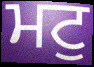
ਮਟੁ